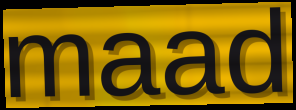
maad